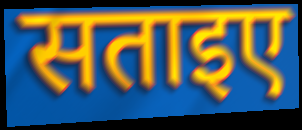
सताइए